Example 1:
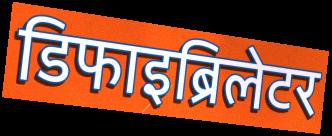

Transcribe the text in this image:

डिफाइब्रिलेटर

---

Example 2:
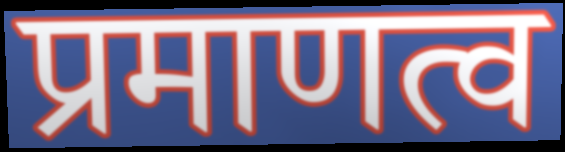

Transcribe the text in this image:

प्रमाणत्व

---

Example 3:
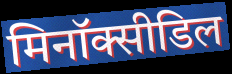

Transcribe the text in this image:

मिनॉक्सीडिल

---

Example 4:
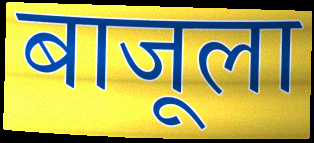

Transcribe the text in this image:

बाजूला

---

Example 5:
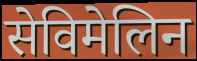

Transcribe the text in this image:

सेविमेलिन